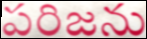
పరిజను